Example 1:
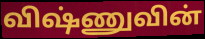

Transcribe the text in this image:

விஷ்ணுவின்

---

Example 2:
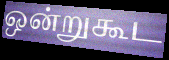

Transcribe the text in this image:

ஒன்றுகூட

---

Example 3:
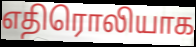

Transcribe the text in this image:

எதிரொலியாக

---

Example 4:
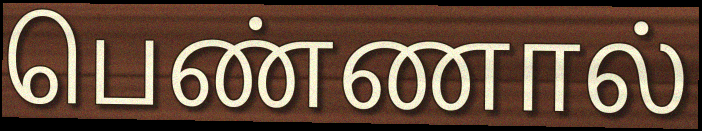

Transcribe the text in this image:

பெண்ணால்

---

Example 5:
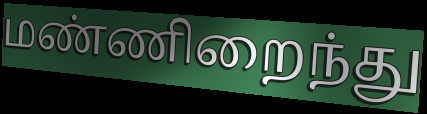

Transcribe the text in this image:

மண்ணிறைந்து